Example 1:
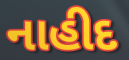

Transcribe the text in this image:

નાહીદ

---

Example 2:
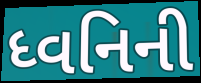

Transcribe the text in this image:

ધ્વનિની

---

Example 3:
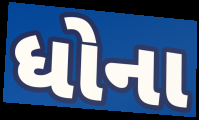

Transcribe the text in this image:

ધોના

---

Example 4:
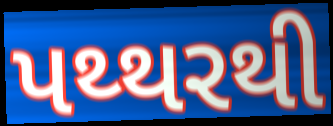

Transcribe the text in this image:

પથ્થરથી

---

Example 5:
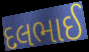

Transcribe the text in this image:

દલભાઈ